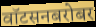
वॉटसनबरोबर